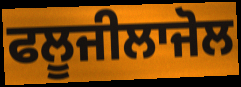
ਫਲੂਜੀਲਾਜੋਲ